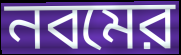
নবমের